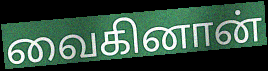
வைகினான்